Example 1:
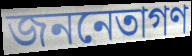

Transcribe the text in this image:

জননেতাগণ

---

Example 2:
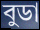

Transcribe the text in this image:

বুডা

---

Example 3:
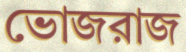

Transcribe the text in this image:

ভোজরাজ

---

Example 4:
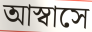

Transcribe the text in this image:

আস্বাসে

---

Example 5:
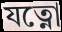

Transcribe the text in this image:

যত্নো